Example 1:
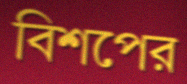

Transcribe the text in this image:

বিশপের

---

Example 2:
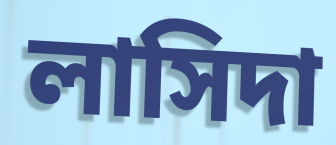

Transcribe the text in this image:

লাসিদা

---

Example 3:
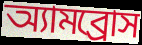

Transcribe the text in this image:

অ্যামব্রোস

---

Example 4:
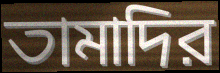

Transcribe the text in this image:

তামাদির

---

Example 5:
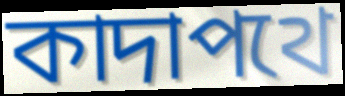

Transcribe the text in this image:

কাদাপথে